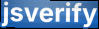
jsverify